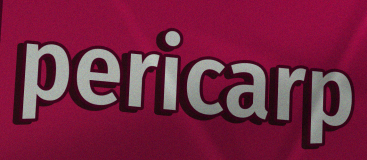
pericarp